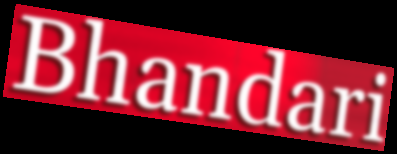
Bhandari